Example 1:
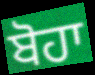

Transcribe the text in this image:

ਬੋਹਾ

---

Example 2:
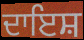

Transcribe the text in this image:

ਦਾਇਸ਼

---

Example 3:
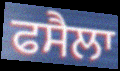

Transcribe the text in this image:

ਫਸੈਲਾ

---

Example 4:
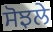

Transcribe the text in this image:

ਸੋਝਲੇ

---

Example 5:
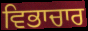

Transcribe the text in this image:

ਵਿਭਾਚਾਰ